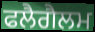
ਫਲੈਗੈਲਮ